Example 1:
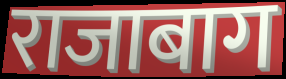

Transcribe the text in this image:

राजाबाग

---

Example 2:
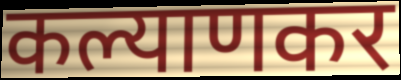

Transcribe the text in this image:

कल्याणकर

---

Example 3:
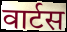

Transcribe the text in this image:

वार्टस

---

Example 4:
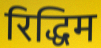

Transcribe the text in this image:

रिद्धिम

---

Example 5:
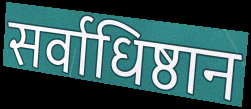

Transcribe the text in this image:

सर्वाधिष्ठान